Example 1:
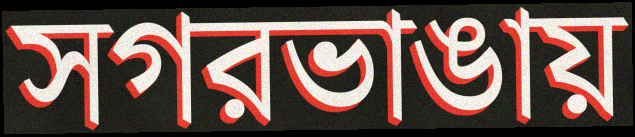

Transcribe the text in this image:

সগরভাঙায়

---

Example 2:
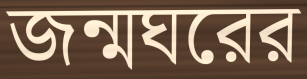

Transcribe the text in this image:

জন্মঘরের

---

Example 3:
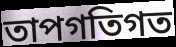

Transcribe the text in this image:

তাপগতিগত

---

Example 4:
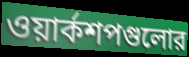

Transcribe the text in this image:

ওয়ার্কশপগুলোর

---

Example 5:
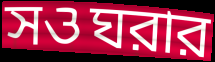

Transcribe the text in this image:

সওঘরার